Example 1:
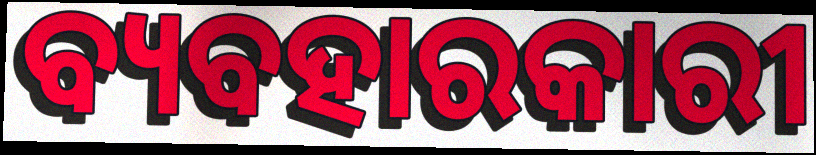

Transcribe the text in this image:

ବ୍ୟବହାରକାରୀ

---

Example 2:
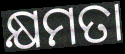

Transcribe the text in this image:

କ୍ଷମତା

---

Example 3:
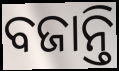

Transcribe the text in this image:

ବଜାନ୍ତି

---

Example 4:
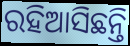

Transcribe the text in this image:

ରହିଆସିଛନ୍ତି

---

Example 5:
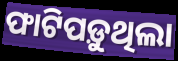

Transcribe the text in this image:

ଫାଟିପଡ଼ୁଥିଲା